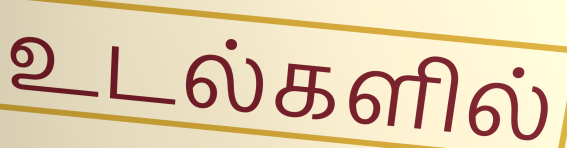
உடல்களில்